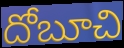
దోబూచి